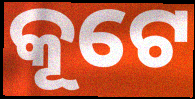
କୂଟେ